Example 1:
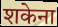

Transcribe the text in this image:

शकेना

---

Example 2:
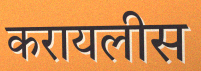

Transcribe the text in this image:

करायलीस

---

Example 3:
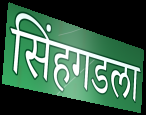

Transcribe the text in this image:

सिंहगडला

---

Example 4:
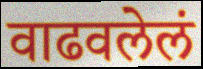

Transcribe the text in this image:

वाढवलेलं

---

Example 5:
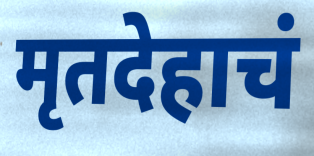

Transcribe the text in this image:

मृतदेहाचं